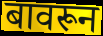
बावरून